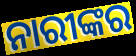
ନାରୀଙ୍କର